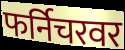
फर्निचरवर